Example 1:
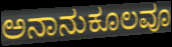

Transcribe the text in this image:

ಅನಾನುಕೂಲವೂ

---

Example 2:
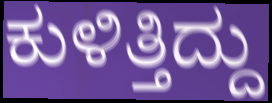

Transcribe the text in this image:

ಕುಳಿತ್ತಿದ್ದು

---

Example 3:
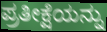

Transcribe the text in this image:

ಪ್ರತೀಕ್ಷೆಯನ್ನು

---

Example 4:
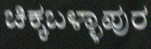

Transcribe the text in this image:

ಚಿಕ್ಕಬಳ್ಳಾಪುರ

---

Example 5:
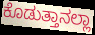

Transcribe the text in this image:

ಕೊಡುತ್ತಾನಲ್ಲಾ